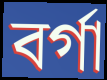
বর্গা